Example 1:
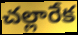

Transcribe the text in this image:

చల్లారేక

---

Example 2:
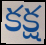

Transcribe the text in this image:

కక్ష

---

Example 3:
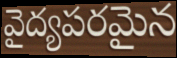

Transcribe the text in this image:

వైద్యపరమైన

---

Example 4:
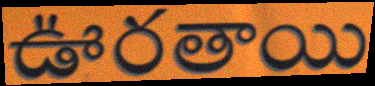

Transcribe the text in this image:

ఊరతాయి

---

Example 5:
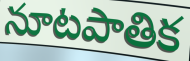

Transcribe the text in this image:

నూటపాతిక